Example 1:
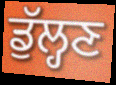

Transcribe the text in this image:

ਡੁੱਲ੍ਹਣ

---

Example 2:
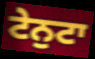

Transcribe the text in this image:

ਟੇਨੁਟਾ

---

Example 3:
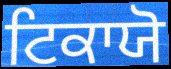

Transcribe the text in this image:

ਟਿਕਾਯੋ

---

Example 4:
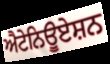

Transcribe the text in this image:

ਐਟੇਨਿਊਏਸ਼ਨ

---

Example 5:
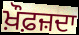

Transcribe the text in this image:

ਖ਼ੌਫ਼ਜ਼ਦਾ